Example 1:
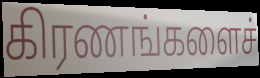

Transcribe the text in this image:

கிரணங்களைச்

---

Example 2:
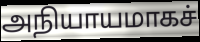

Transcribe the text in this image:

அநியாயமாகச்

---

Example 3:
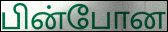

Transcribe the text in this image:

பின்போன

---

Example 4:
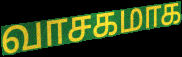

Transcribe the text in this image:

வாசகமாக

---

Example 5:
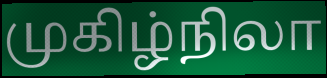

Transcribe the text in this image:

முகிழ்நிலா